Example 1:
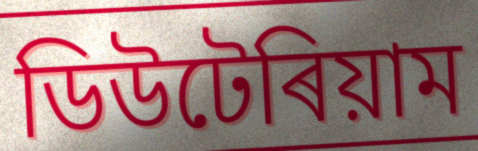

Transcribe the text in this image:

ডিউটেৰিয়াম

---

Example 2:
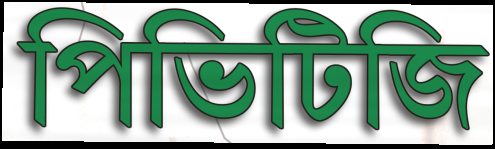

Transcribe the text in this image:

পিভিটিজি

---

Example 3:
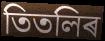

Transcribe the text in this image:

তিতলিৰ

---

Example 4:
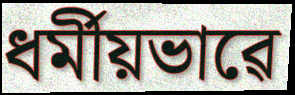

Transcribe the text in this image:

ধৰ্মীয়ভাৱে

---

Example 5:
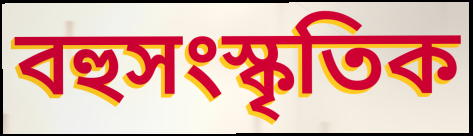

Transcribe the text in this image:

বহুসংস্কৃতিক